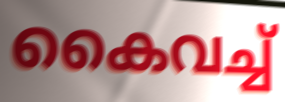
കൈവച്ച്